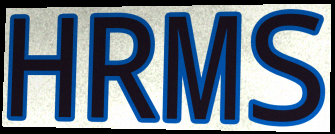
HRMS